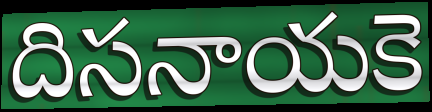
దిసనాయకె